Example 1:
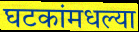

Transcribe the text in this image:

घटकांमधल्या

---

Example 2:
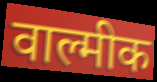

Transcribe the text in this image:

वाल्मीक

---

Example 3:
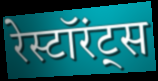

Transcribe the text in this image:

रेस्टॉरंट्‌स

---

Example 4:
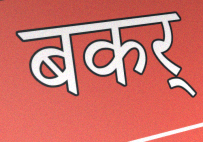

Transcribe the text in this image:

बकर्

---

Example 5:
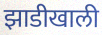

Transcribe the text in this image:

झाडीखाली